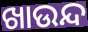
ଖାଉନ୍ଦ